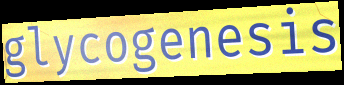
glycogenesis